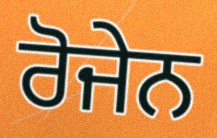
ਰੋਜੇਨ